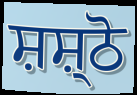
ਸ਼ਸ਼੍ਠੋ